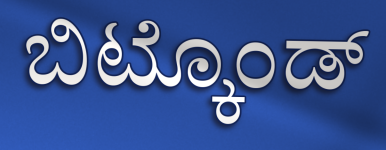
ಬಿಟ್ಕೊಂಡ್